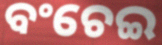
ବଂଚେଇ